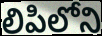
లిపిలోని